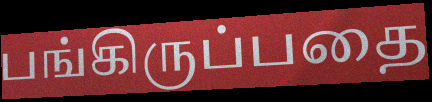
பங்கிருப்பதை